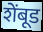
शेंबूड